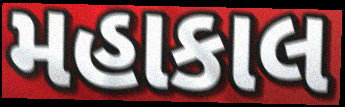
મહાકાલ